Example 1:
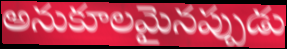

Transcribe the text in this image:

అనుకూలమైనప్పుడు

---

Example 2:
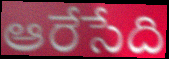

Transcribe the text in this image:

ఆరేసేది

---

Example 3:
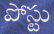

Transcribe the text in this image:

పోస్టు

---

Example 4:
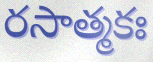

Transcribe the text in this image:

రసాత్మకః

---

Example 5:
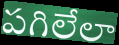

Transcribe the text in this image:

పగిలేలా